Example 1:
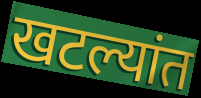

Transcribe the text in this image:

खटल्यांत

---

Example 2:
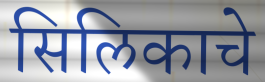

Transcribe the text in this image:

सिलिकाचे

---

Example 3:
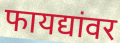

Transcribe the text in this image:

फायद्यांवर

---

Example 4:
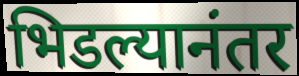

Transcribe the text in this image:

भिडल्यानंतर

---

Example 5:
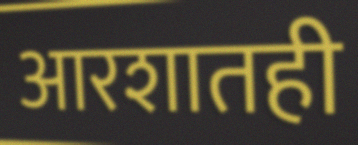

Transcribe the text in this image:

आरशातही